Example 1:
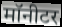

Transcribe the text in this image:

मॉनीटर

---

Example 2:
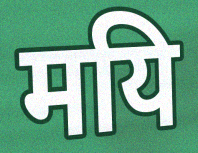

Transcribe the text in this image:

मयि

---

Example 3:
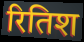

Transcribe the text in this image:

रितिश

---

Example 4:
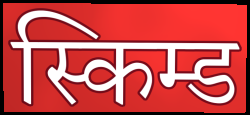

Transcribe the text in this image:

स्किम्ड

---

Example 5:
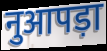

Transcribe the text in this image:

नुआपड़ा